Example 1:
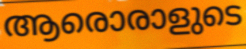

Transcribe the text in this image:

ആരൊരാളുടെ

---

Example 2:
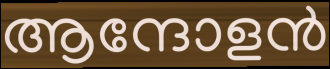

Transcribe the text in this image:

ആന്ദോളൻ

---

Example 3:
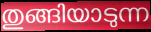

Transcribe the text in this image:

തുങ്ങിയാടുന്ന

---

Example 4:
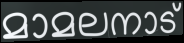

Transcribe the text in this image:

മാമലനാട്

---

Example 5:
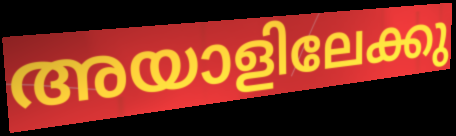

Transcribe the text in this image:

അയാളിലേക്കു